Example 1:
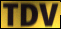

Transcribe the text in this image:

TDV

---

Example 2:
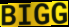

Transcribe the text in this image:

BIGG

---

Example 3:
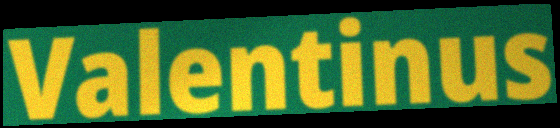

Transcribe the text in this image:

Valentinus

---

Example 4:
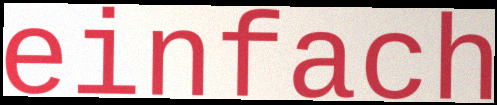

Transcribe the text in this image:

einfach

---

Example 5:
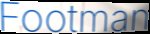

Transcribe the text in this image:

Footman